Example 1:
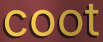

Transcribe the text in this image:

coot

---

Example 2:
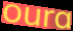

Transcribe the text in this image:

oura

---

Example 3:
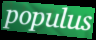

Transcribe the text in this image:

populus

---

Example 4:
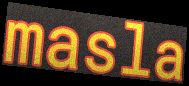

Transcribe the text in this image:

masla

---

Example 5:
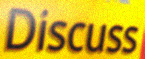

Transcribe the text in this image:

Discuss